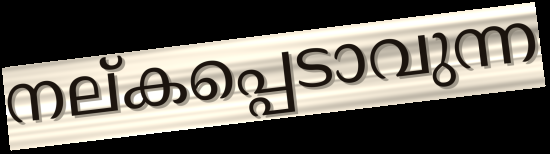
നല്കപ്പെടാവുന്ന